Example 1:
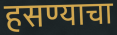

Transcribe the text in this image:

हसण्याचा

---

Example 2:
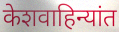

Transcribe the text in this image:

केशवाहिन्यांत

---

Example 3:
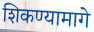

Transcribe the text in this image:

शिकण्यामागे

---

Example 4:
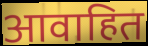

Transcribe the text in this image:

आवाहित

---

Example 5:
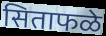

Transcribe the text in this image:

सिताफळे